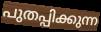
പുതപ്പിക്കുന്ന